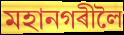
মহানগৰীলৈ